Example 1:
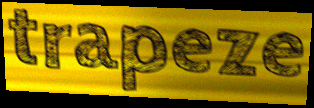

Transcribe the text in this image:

trapeze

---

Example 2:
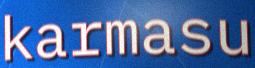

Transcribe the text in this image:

karmasu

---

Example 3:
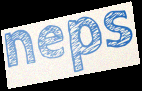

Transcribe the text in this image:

neps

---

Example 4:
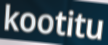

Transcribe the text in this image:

kootitu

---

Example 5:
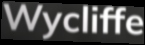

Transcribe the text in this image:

Wycliffe